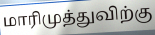
மாரிமுத்துவிற்கு